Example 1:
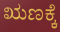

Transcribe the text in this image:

ಋಣಕ್ಕೆ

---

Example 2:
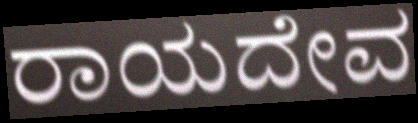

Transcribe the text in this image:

ರಾಯದೇವ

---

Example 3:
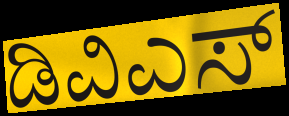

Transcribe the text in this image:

ಡಿವಿಎಸ್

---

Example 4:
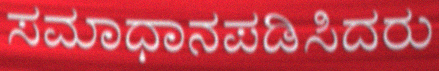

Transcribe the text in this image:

ಸಮಾಧಾನಪಡಿಸಿದರು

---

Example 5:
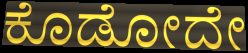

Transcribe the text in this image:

ಕೊಡೋದೇ